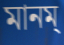
মানম্